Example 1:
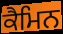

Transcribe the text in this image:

ਕੈਮਿਨ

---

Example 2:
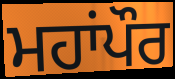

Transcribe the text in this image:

ਮਹਾਂਪੌਰ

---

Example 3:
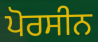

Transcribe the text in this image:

ਪੋਰਸੀਨ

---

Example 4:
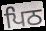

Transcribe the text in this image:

ਪਿਠ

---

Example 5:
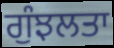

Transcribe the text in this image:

ਗੁੰਝਲਤਾ